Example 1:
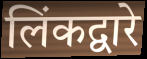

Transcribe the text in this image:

लिंकद्वारे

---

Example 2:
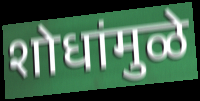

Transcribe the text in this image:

शोधांमुळे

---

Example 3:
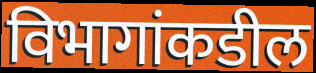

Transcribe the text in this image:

विभागांकडील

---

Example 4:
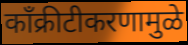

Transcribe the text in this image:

काँक्रीटीकरणामुळे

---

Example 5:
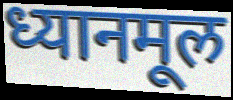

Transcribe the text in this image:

ध्यानमूल